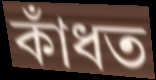
কাঁধত